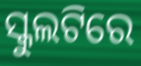
ସ୍କୁଲଟିରେ